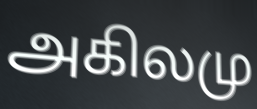
அகிலமு